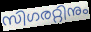
സിഗരറ്റിനും